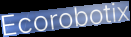
Ecorobotix